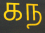
கந